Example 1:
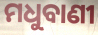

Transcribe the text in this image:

ମଧୁବାଣୀ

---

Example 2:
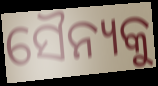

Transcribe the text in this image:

ସୈନ୍ୟକୁ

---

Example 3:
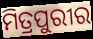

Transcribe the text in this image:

ମିତ୍ରପୁରୀର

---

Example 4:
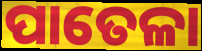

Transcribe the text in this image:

ପାତେଳା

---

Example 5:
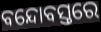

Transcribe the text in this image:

ବନ୍ଦୋବସ୍ତରେ